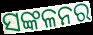
ସଙ୍କଳନର